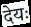
देयः